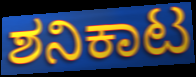
ಶನಿಕಾಟ